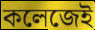
কলেজেই